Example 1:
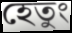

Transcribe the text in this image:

হেতুং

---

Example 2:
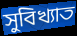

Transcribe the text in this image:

সুবিখ্যাত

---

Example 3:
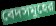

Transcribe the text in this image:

বেদসমূহের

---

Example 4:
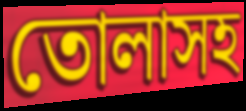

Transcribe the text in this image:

তোলাসহ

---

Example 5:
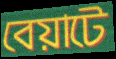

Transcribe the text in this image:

বেয়াটে